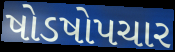
ષોડષોપચાર